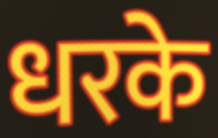
धरके